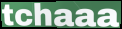
tchaaa